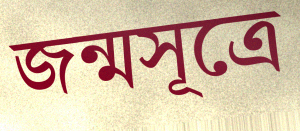
জন্মসূত্রে